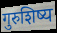
गुरुशिष्य